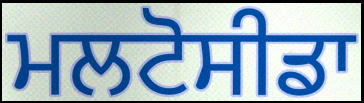
ਮਲਟੋਸੀਡਾ